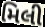
મિલી